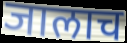
जालाच